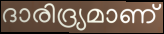
ദാരിദ്ര്യമാണ്